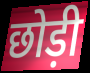
छोड़ी